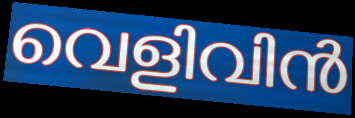
വെളിവിൻ